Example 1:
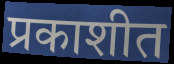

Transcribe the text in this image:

प्रकाशीत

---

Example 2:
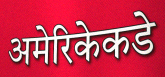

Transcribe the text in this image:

अमेरिकेकडे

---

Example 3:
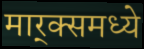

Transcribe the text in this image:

मार्क्समध्ये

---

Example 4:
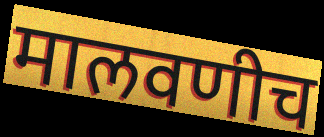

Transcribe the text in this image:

मालवणीच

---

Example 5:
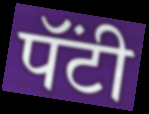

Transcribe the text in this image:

पॅंटी